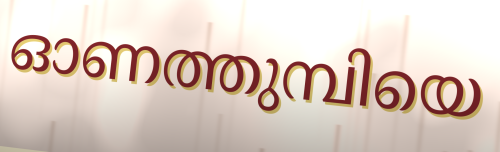
ഓണത്തുമ്പിയെ